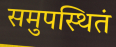
समुपस्थितं